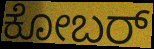
ಕೋಬರ್